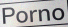
Porno